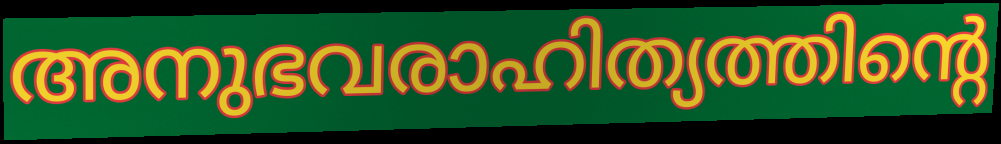
അനുഭവരാഹിത്യത്തിന്റെ